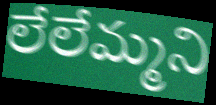
లేలేమ్మని